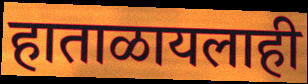
हाताळायलाही